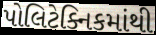
પોલિટેક્નિકમાંથી